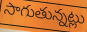
సాగుతున్నట్లు